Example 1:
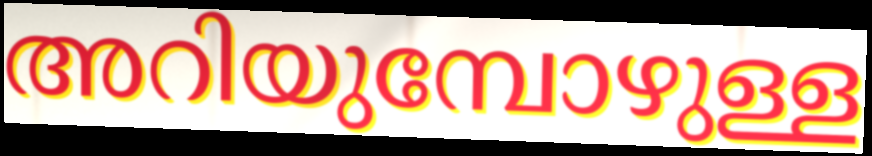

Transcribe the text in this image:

അറിയുമ്പോഴുള്ള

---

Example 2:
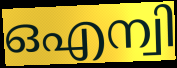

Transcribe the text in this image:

ഒഎന്വി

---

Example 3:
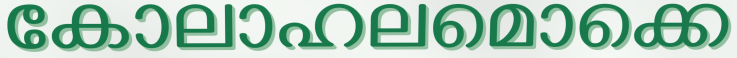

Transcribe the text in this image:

കോലാഹലമൊക്കെ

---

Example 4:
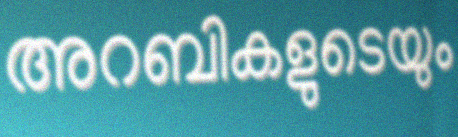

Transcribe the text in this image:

അറബികളുടെയും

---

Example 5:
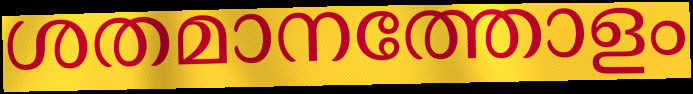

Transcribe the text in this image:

ശതമാനത്തോളം